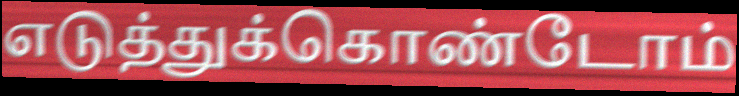
எடுத்துக்கொண்டோம்